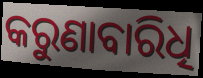
କରୁଣାବାରିଧି